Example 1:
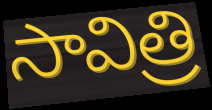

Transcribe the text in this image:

సావిత్రి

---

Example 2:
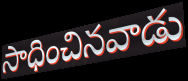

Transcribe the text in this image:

సాధించినవాడు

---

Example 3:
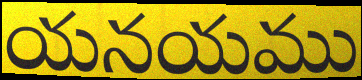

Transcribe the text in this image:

యనయము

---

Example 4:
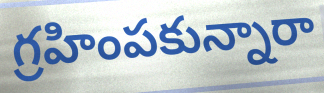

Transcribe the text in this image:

గ్రహింపకున్నారా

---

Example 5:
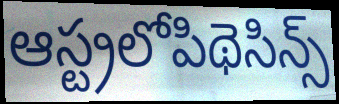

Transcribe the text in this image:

ఆస్ట్రలోపిథెసిన్స్